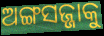
ଅଙ୍ଗସଜ୍ଜାକୁ